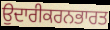
ਉਦਾਰੀਕਰਨਭਾਰਤ